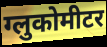
ग्लुकोमीटर